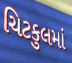
ચિટકુલમાં